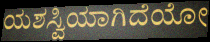
ಯಶಸ್ವಿಯಾಗಿದೆಯೋ